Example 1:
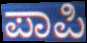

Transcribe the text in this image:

ಪಾಪಿ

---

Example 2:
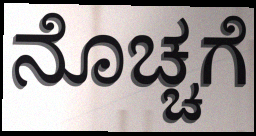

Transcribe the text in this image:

ನೊಚ್ಚಗೆ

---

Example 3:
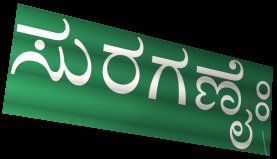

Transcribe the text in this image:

ಸುರಗಣೈಃ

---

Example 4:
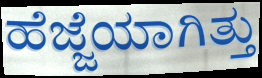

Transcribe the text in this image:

ಹೆಜ್ಜೆಯಾಗಿತ್ತು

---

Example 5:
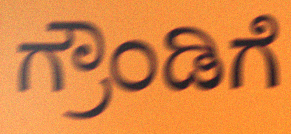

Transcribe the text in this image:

ಗ್ರೌಂಡಿಗೆ